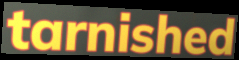
tarnished